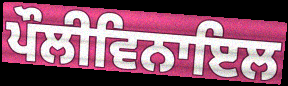
ਪੌਲੀਵਿਨਾਇਲ